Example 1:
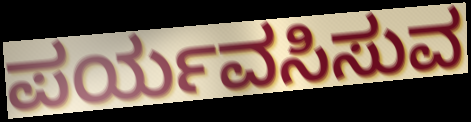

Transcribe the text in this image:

ಪರ್ಯವಸಿಸುವ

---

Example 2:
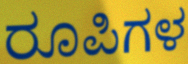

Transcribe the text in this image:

ರೂಪಿಗಳ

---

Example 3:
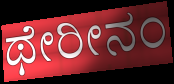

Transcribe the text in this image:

ಥೇರೀನಂ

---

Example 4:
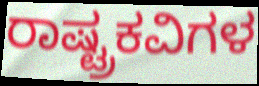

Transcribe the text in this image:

ರಾಷ್ಟ್ರಕವಿಗಳ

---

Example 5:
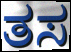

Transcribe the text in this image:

ತಸ